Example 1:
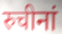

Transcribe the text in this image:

रुचीनां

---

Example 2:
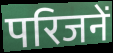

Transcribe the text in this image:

परिजनें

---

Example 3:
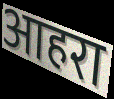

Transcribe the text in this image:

आहरा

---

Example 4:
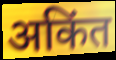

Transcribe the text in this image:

अकिंत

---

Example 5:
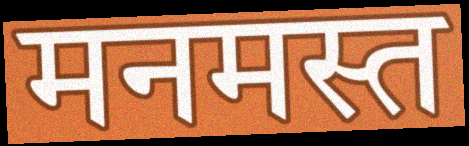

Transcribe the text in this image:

मनमस्त